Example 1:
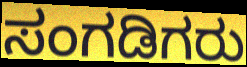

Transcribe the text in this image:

ಸಂಗಡಿಗರು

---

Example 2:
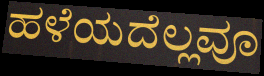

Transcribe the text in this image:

ಹಳೆಯದೆಲ್ಲವೂ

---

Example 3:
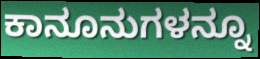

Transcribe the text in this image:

ಕಾನೂನುಗಳನ್ನೂ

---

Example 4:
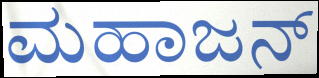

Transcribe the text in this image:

ಮಹಾಜನ್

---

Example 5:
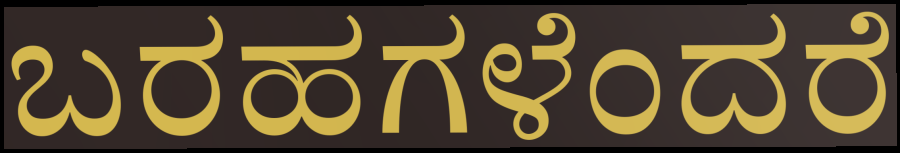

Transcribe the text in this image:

ಬರಹಗಳೆಂದರೆ